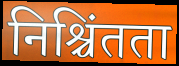
निश्चिंतता